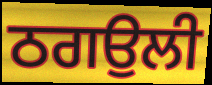
ਠਗਉਲੀ